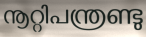
നൂറ്റിപന്ത്രണ്ടു